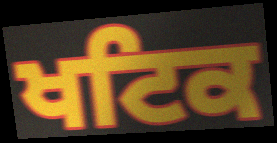
ਖਟਿਕ